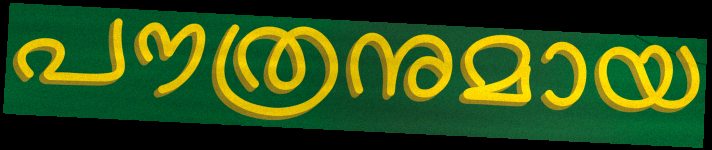
പൗത്രനുമായ